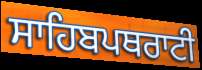
ਸਾਹਿਬਪਥਰਾਟੀ